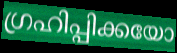
ഗ്രഹിപ്പിക്കയോ